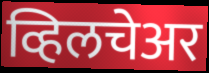
व्हिलचेअर